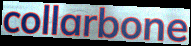
collarbone